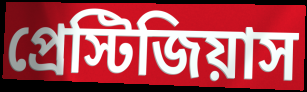
প্রেস্টিজিয়াস